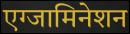
एग्‍जामिनेशन